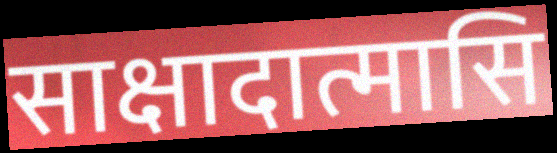
साक्षादात्मासि